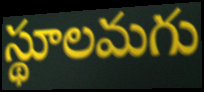
స్థూలమగు